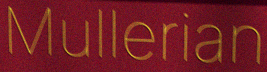
Mullerian